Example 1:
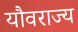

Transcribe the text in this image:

यौवराज्य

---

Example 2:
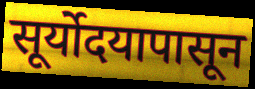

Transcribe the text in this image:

सूर्योदयापासून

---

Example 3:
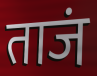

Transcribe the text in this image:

ताजं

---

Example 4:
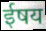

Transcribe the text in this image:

ईषय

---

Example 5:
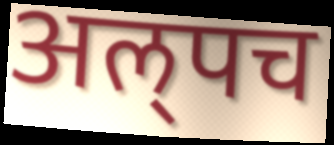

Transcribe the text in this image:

अल्पच